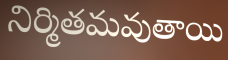
నిర్మితమవుతాయి